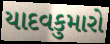
યાદવકુમારો